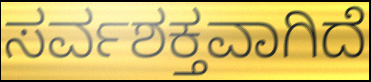
ಸರ್ವಶಕ್ತವಾಗಿದೆ